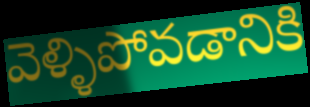
వెళ్ళిపోవడానికి